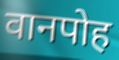
वानपोह